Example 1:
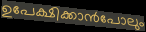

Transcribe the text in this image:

ഉപേക്ഷിക്കാൻപോലും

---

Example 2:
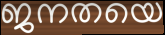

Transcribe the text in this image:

ജനതയെ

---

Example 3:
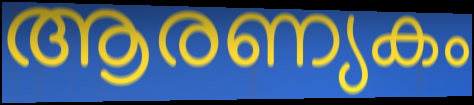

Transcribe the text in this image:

ആരണ്യകം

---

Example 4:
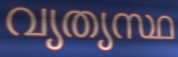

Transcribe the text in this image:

വ്യത്യസ്ഥ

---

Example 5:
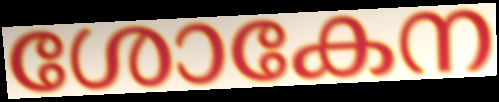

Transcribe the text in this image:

ശോകേന